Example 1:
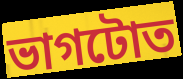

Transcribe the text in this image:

ভাগটোত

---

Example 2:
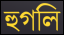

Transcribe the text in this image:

হুগলি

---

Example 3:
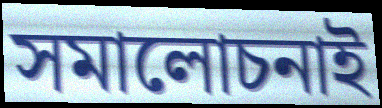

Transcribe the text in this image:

সমালোচনাই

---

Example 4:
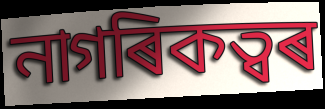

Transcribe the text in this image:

নাগৰিকত্বৰ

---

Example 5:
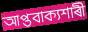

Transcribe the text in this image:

আপ্তবাক্যশাৰী